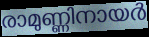
രാമുണ്ണിനായർ